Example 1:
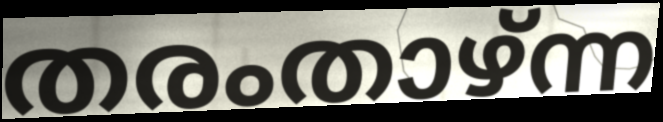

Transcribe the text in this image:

തരംതാഴ്ന്ന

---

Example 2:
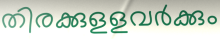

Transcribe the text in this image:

തിരക്കുളളവർക്കും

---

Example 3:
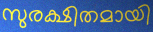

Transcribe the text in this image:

സുരക്ഷിതമായി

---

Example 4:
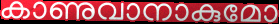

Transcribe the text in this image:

കാണുവാനാകുമോ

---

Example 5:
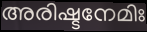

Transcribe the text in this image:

അരിഷ്ടനേമിഃ